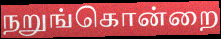
நறுங்கொன்றை